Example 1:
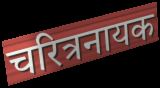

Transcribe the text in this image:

चरित्रनायक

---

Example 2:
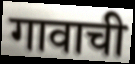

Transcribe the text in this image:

गावाची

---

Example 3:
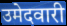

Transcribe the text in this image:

उमेदवारी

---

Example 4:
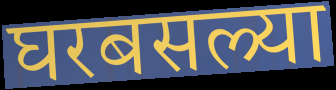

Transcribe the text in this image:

घरबसल्या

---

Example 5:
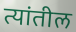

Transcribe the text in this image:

त्यांतील